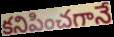
కనిపించగానే